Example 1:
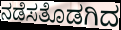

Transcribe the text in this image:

ನಡೆಸತೊಡಗಿದ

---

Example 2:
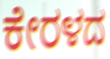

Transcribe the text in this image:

ಕೇರಳದ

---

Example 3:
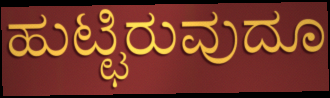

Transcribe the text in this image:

ಹುಟ್ಟಿರುವುದೂ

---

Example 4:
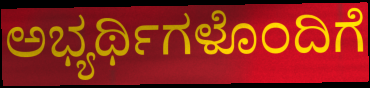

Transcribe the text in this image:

ಅಭ್ಯರ್ಥಿಗಳೊಂದಿಗೆ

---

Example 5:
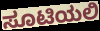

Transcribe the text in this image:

ಸೂಟಿಯಲಿ